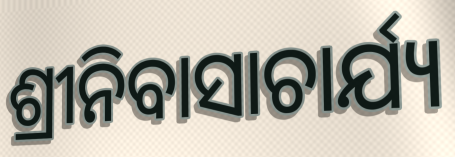
ଶ୍ରୀନିବାସାଚାର୍ଯ୍ୟ